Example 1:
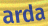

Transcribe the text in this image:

arda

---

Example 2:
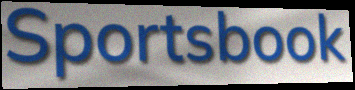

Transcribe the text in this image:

Sportsbook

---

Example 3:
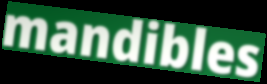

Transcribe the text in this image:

mandibles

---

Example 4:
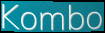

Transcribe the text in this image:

Kombo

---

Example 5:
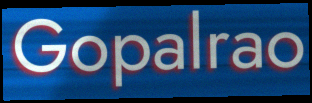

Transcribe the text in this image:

Gopalrao